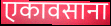
एकावसाना